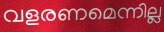
വളരണമെന്നില്ല